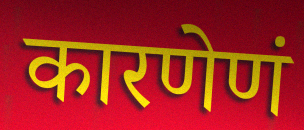
कारणेणं